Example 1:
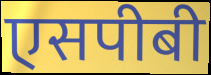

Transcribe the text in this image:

एसपीबी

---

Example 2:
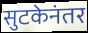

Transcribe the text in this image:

सुटकेनंतर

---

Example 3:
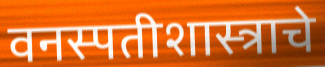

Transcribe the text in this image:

वनस्पतीशास्त्राचे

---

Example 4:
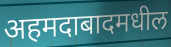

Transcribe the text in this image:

अहमदाबादमधील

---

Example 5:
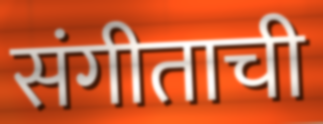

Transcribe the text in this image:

संगीताची